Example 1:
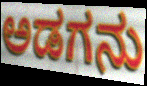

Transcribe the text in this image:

ಅಡಗನು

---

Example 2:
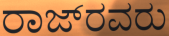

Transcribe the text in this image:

ರಾಜ್‌ರವರು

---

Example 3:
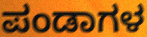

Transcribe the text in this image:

ಪಂಡಾಗಳ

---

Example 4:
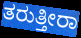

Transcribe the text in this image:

ತರುತ್ತೀರಾ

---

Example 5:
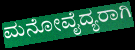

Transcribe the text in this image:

ಮನೋವೈದ್ಯರಾಗಿ